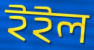
ইইল